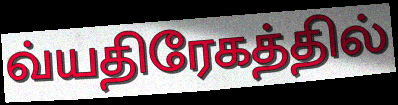
வ்யதிரேகத்தில்